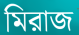
মিরাজ